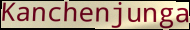
Kanchenjunga